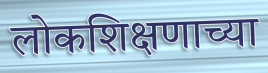
लोकशिक्षणाच्या